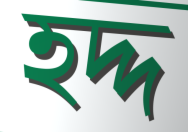
হদ্দ